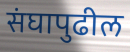
संघापुढील